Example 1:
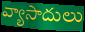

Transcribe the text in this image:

వ్యాసాదులు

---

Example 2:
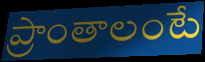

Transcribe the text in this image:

ప్రాంతాలంటే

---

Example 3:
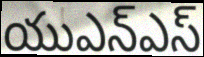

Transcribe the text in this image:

యుఎన్ఎస్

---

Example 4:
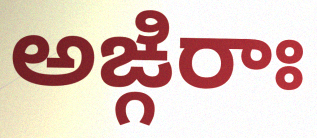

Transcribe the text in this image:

అఙ్గిరాః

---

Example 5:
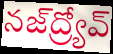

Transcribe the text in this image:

నజ్‌ద్ర్యోవ్